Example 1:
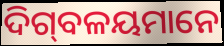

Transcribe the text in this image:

ଦିଗ୍‌ବଳୟମାନେ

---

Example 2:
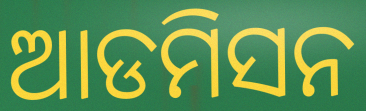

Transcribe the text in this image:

ଆଡମିସନ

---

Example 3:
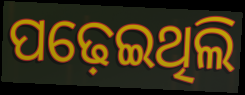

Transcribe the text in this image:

ପଢ଼େଇଥିଲି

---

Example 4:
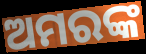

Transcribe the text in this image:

ଅମରଙ୍କ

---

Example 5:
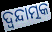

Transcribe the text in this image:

ଦ୍ୱନ୍ଦାତ୍ମକ